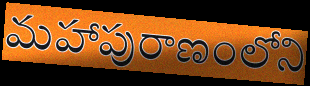
మహాపురాణంలోని